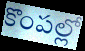
కొంపల్లో